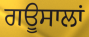
ਗਊਸਾਲਾਂ